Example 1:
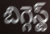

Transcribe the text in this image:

బిగ్గెస్ట్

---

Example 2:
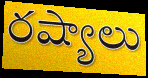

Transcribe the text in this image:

రష్యాలు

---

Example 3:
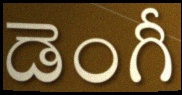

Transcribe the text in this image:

డెంగీ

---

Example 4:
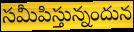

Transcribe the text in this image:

సమీపిస్తున్నందున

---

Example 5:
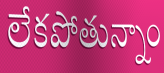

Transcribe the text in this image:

లేకపోతున్నాం